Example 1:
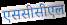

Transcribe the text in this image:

एससीसीएल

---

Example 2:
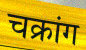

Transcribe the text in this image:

चक्रांग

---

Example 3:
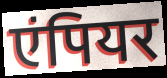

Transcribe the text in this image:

एंपियर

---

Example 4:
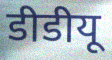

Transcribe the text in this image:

डीडीयू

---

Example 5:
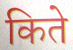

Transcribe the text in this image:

किते